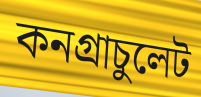
কনগ্রাচুলেট